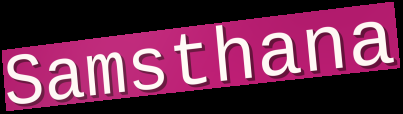
Samsthana